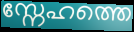
സ്നേഹത്തെ